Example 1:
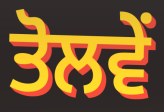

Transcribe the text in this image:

ਤੋਲਵੇਂ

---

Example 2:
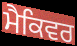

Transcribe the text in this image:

ਮੈਕਿਵਰ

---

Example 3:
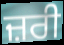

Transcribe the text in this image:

ਜ਼ਰੀ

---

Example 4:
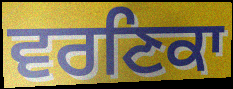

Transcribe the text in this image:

ਵਰਣਿਕਾ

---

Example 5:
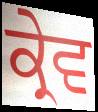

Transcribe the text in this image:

ਕ੍ਰੇਵ